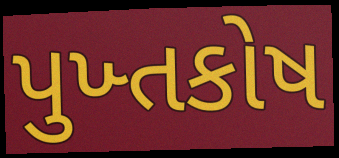
પુખ્તકોષ